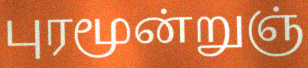
புரமூன்றுஞ்